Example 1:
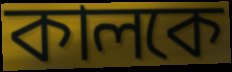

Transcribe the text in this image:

কালকে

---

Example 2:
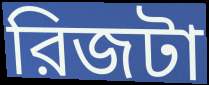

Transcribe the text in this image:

রিজটা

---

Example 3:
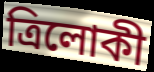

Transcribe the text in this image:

ত্রিলোকী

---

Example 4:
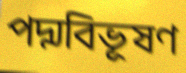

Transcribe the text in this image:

পদ্মবিভূষণ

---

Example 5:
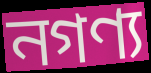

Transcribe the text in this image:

নগণ্য